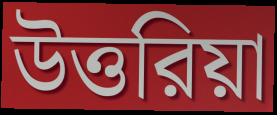
উত্তরিয়া